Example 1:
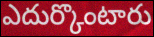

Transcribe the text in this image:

ఎదుర్కొంటారు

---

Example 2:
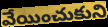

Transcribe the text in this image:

వేయించుకుని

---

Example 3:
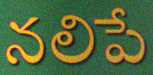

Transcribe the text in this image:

నలిపే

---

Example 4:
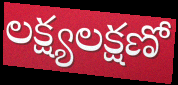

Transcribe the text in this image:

లక్ష్యలక్షణో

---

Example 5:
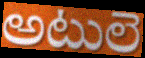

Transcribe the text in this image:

అటులె